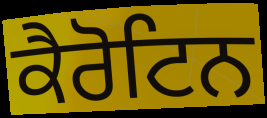
ਕੈਰੋਟਿਨ